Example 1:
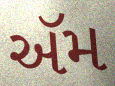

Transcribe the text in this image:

ઍમ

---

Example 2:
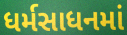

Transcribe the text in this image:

ધર્મસાધનમાં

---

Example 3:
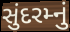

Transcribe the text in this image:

સુંદરમ્નું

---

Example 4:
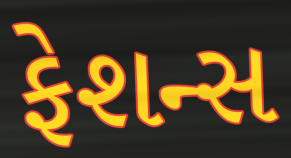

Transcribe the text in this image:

ફેશન્સ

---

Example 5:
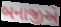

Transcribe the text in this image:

બનાજીએ